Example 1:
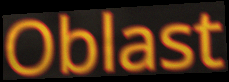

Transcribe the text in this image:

Oblast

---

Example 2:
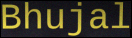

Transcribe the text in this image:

Bhujal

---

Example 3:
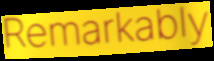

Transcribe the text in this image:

Remarkably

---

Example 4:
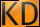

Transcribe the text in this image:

KD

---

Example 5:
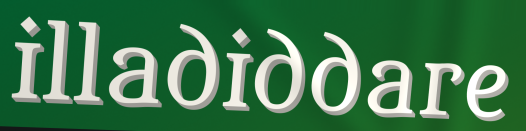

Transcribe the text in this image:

illadiddare